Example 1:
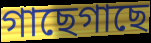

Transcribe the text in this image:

গাছেগাছে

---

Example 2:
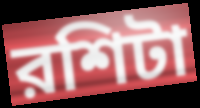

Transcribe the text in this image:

রশিটা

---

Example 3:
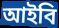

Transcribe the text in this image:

আইবি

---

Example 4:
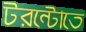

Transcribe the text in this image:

টরন্টোতে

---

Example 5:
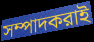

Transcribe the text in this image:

সম্পাদকরাই